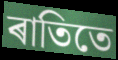
ৰাতিতে